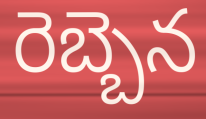
రెబ్బెన